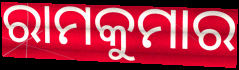
ରାମକୁମାର